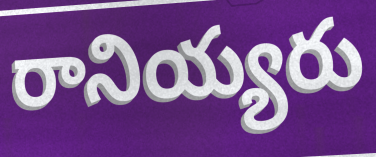
రానియ్యరు